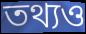
তথ্যও